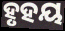
ହୃହୟ